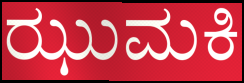
ಝುಮಕಿ